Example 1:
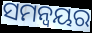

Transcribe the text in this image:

ସମନ୍ଵୟର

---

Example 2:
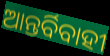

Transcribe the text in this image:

ଆନ୍ତର୍ବିବାହୀ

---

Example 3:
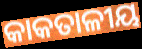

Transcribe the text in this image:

କାକତାଳୀୟ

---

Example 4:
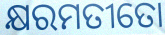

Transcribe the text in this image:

କ୍ଷରମତୀତୋ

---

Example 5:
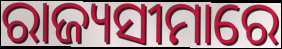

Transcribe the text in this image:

ରାଜ୍ୟସୀମାରେ